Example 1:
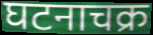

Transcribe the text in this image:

घटनाचक्र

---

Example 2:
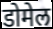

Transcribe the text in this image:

डोमेल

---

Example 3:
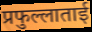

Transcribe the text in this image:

प्रफुल्लाताई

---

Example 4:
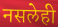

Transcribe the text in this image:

नसलेही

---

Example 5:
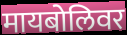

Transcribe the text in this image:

मायबोलिवर